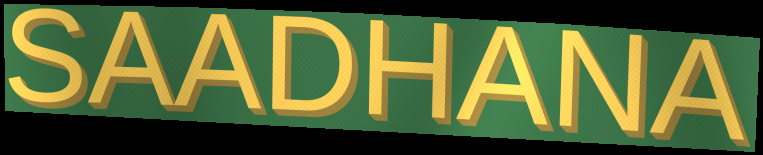
SAADHANA